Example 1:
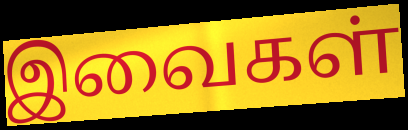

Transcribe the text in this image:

இவைகள்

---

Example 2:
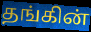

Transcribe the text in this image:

தங்கின்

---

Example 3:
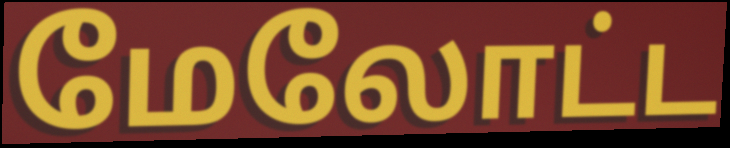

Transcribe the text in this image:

மேலோட்ட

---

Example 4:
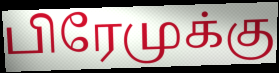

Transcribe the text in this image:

பிரேமுக்கு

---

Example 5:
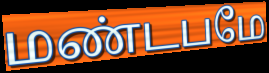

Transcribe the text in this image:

மண்டபமே